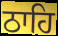
ਠਾਹਿ